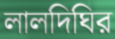
লালদিঘির